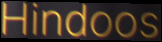
Hindoos